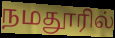
நமதூரில்